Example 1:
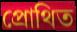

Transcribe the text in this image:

প্ৰোথিত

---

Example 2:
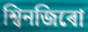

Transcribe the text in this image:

শ্বিনজিৰো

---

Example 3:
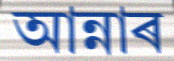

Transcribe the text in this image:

আন্নাৰ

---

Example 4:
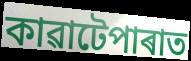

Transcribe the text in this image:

কাৱাটেপাৰাত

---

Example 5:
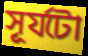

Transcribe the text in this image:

সূৰ্যটো